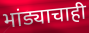
भांड्याचाही